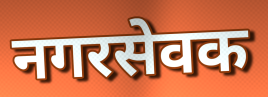
नगरसेवक